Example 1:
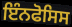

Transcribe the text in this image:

ਇੰਨਫੋਸਿਸ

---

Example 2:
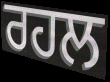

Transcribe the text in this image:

ਰਹਲ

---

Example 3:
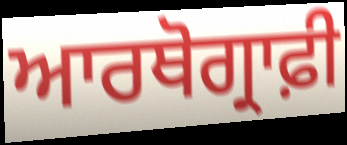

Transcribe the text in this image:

ਆਰਥੋਗ੍ਰਾਫ਼ੀ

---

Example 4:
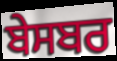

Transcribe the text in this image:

ਬੇਸਬਰ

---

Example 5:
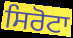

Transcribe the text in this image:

ਸਿਰੋਟਾ